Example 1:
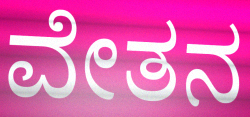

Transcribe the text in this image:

ವೇತನ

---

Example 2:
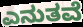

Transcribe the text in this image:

ಎನುತವೆ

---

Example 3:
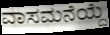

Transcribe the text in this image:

ವಾಸಮನೆಯ್ದೆ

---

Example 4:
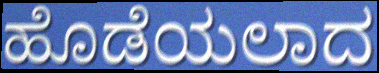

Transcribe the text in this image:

ಹೊಡೆಯಲಾದ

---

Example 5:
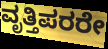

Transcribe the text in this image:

ವೃತ್ತಿಪರರೇ